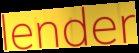
lender